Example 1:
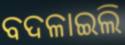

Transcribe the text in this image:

ବଦଳାଇଲି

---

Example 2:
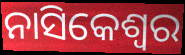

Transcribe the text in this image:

ନାସିକେଶ୍ୱର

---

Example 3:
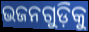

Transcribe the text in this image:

ଭଜନଗୁଡ଼ିକୁ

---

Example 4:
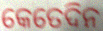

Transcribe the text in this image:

କେତେଦିନ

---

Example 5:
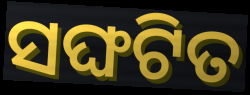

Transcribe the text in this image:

ସଙ୍ଘଟିତ